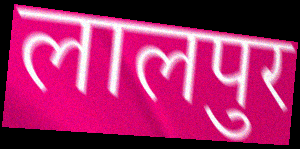
लालपुर